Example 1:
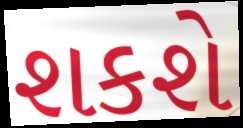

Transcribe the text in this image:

શકશે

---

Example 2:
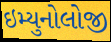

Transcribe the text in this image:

ઇમ્યુનોલોજી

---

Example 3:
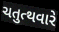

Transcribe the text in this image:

ચતુત્થવારે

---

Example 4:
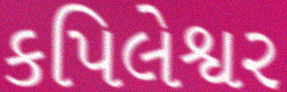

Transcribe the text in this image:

કપિલેશ્વર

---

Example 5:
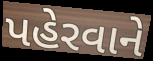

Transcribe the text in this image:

પહેરવાને